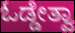
ಓಡ್ಡೇತ್ವಾ